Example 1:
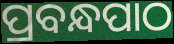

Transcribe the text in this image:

ପ୍ରବନ୍ଧପାଠ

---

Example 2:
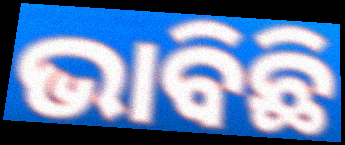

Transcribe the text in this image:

ଭାବିଛି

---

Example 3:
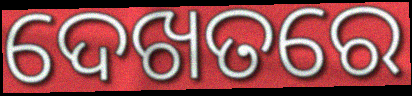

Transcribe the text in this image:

ଦେଖତରେ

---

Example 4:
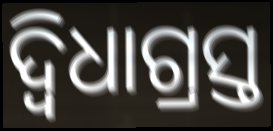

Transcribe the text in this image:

ଦ୍ୱିଧାଗ୍ରସ୍ତ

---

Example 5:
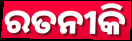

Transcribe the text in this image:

ରତନୀକି